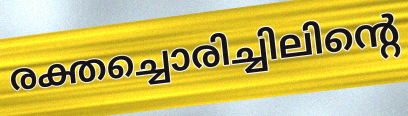
രക്തച്ചൊരിച്ചിലിന്റെ